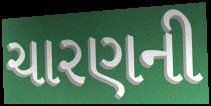
ચારણની